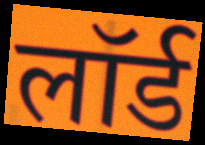
लॉर्ड